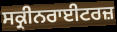
ਸਕ੍ਰੀਨਰਾਈਟਰਜ਼